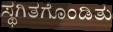
ಸ್ಥಗಿತಗೊಂಡಿತು